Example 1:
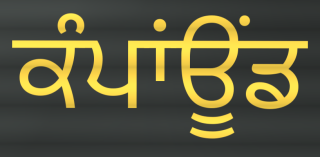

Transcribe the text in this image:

ਕੰਪਾਂਊਂਡ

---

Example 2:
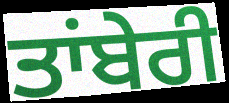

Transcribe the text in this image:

ਤਾਂਬੇਰੀ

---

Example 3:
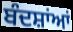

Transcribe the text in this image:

ਬੰਦਸ਼ਾਂਆਂ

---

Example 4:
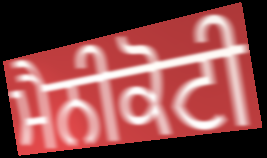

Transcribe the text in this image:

ਮੈਨੀਕੋਟੀ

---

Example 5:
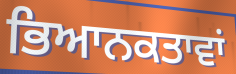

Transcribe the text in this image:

ਭਿਆਨਕਤਾਵਾਂ